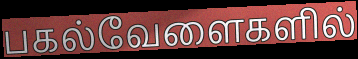
பகல்வேளைகளில்